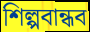
শিল্পবান্ধব